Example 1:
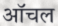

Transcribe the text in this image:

ऑचल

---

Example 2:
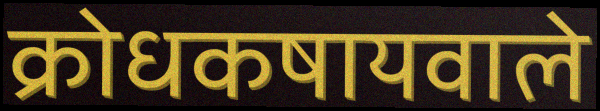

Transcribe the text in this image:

क्रोधकषायवाले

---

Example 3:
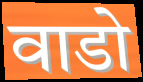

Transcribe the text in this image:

वाडो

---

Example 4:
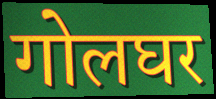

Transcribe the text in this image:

गोलघर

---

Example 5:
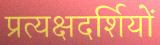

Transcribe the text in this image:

प्रत्यक्षदर्शियों